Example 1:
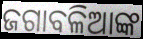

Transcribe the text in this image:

ଜଗାବଳିଆଙ୍କ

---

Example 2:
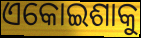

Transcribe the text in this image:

ଏକୋଇଶାକୁ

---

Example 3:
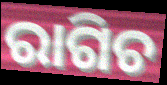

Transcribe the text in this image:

ରାଗିଚ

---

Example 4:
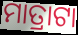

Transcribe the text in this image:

ମାତ୍ରାଟା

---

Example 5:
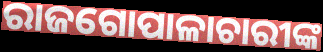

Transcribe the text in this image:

ରାଜଗୋପାଳାଚାରୀଙ୍କ